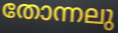
തോന്നലു